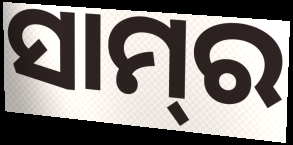
ସାମ୍‌ର